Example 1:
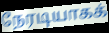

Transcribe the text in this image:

நேரடியாகக்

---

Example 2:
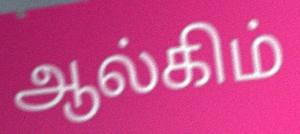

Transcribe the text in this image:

ஆல்கிம்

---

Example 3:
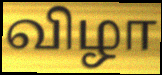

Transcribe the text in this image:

விழா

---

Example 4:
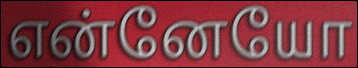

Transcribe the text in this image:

என்னேயோ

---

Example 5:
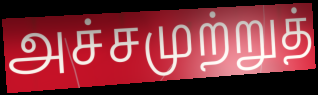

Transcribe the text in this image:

அச்சமுற்றுத்